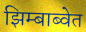
झिम्बाब्वेत